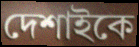
দেশাইকে